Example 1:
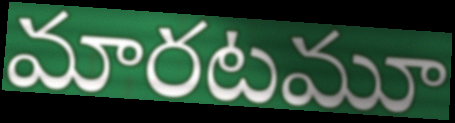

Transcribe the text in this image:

మారటమూ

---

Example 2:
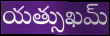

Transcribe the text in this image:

యత్సుఖమ్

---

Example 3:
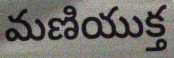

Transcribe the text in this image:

మణియుక్త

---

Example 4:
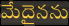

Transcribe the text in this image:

మేదైనను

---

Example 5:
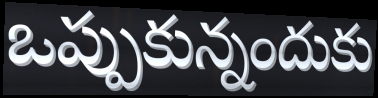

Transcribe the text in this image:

ఒప్పుకున్నందుకు